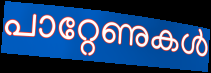
പാറ്റേണുകൾ